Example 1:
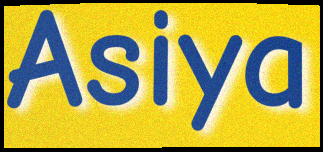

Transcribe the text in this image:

Asiya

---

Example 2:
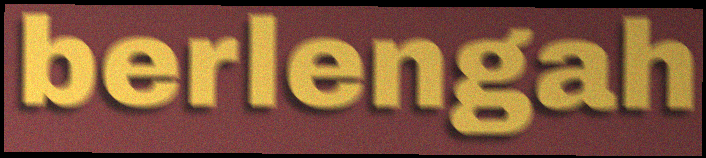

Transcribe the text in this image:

berlengah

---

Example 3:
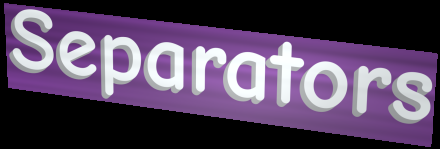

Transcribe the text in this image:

Separators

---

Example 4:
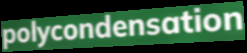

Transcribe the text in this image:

polycondensation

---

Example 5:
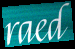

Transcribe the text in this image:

raed